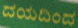
ದಯದಿಂದ